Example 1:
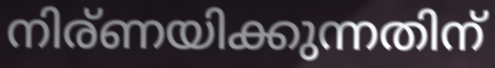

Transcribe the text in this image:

നിര്ണയിക്കുന്നതിന്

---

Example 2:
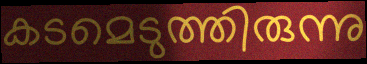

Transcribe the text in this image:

കടമെടുത്തിരുന്നു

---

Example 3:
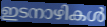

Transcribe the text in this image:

ഇടനാഴികൾ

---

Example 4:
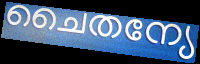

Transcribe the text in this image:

ചൈതന്യേ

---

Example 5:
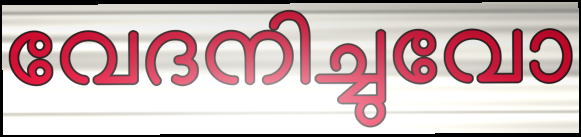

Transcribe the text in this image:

വേദനിച്ചുവോ